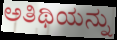
ಅತಿಥಿಯನ್ನು